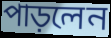
পাড়লেন